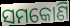
ସମକୋଣି